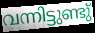
വന്നിട്ടുണ്ടു്